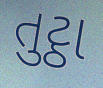
તુટ્ઠા